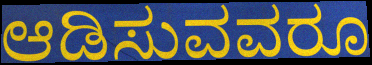
ಆಡಿಸುವವರೂ